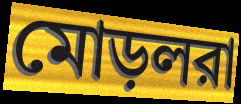
মোড়লরা